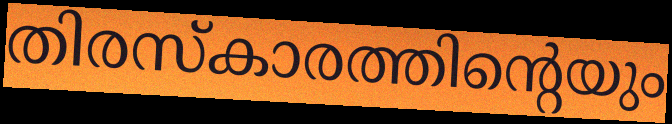
തിരസ്കാരത്തിന്റെയും